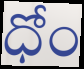
ధోం